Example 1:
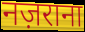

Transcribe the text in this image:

नज़राना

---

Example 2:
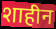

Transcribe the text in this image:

शाहीन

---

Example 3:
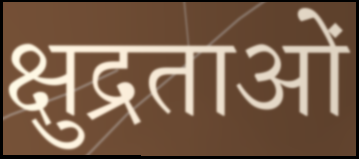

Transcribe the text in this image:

क्षुद्रताओं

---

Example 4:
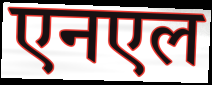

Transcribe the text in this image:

एनएल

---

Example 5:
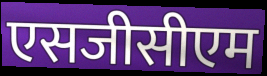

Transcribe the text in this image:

एसजीसीएम